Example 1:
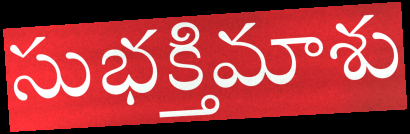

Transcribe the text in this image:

సుభక్తిమాశు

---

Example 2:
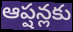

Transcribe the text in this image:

ఆప్షన్లకు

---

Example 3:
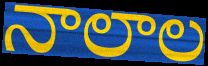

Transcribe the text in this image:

నాలాల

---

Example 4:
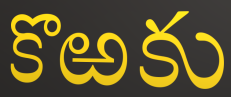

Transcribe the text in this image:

కొఱకు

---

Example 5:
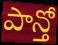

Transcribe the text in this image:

పాన్తో